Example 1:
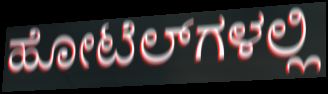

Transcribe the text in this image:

ಹೋಟೆಲ್‍ಗಳಲ್ಲಿ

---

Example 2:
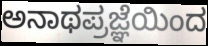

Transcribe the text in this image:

ಅನಾಥಪ್ರಜ್ಞೆಯಿಂದ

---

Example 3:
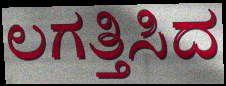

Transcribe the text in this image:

ಲಗತ್ತಿಸಿದ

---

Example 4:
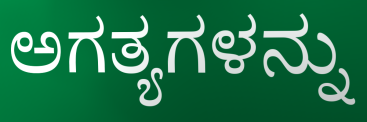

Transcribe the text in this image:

ಅಗತ್ಯಗಳನ್ನು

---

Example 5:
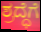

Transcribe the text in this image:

ಶ್ರದ್ಧೆಗೆ